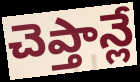
చెప్తాన్లే